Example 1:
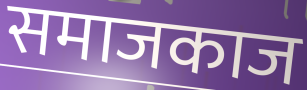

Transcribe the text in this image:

समाजकाज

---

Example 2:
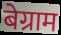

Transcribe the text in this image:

बेग्राम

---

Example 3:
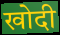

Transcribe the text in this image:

खोदी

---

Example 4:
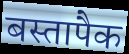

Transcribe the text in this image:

बस्तापैक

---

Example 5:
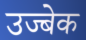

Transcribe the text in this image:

उज्बेक